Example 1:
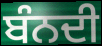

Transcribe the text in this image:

ਬੰਨਦੀ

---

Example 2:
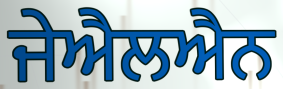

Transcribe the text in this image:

ਜੇਐਲਐਨ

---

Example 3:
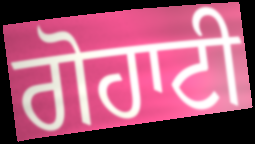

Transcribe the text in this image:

ਗੋਹਾਟੀ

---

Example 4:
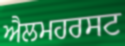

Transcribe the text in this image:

ਐਲਮਹਰਸਟ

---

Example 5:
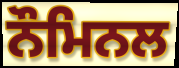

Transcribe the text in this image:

ਨੌਮਿਨਲ